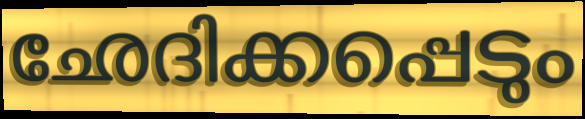
ഛേദിക്കപ്പെടും